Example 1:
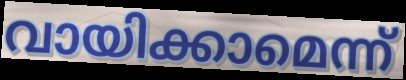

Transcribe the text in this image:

വായിക്കാമെന്ന്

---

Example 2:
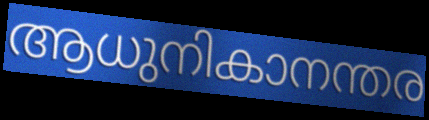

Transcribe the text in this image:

ആധുനികാനന്തര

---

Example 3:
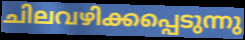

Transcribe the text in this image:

ചിലവഴിക്കപ്പെടുന്നു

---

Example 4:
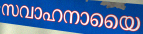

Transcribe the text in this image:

സവാഹനായൈ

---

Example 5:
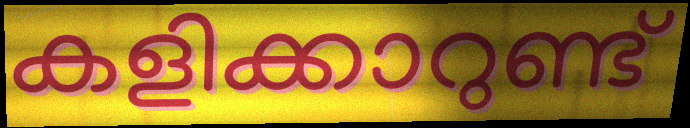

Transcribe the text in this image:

കളിക്കാറുണ്ട്